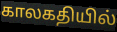
காலகதியில்